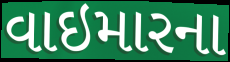
વાઇમારના